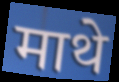
माथे